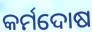
କର୍ମଦୋଷ